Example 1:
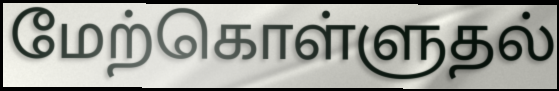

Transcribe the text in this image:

மேற்கொள்ளுதல்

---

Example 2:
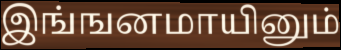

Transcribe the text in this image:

இங்ஙனமாயினும்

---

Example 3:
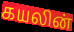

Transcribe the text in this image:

கயலின்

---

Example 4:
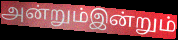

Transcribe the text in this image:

அன்றும்இன்றும்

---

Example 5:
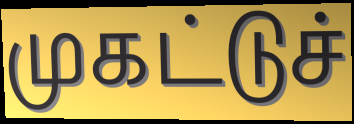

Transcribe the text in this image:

முகட்டுச்